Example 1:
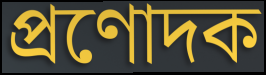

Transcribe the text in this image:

প্রণোদক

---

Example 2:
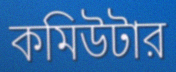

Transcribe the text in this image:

কমিউটার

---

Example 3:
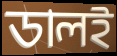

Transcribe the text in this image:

ডালই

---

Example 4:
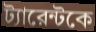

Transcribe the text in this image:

ট্যারেন্টকে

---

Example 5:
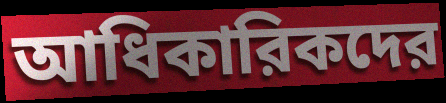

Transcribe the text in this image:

আধিকারিকদের